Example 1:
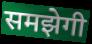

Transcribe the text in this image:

समझेगी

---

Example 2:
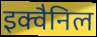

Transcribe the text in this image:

इक्वैनिल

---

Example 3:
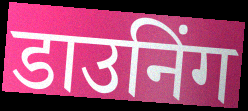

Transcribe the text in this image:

डाउनिंग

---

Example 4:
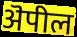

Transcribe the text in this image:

ऄपील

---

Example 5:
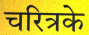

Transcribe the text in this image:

चरित्रके